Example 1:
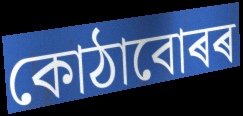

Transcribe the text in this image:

কোঠাবোৰৰ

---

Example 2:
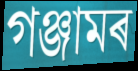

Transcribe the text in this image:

গঞ্জামৰ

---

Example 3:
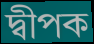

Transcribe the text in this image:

দ্বীপক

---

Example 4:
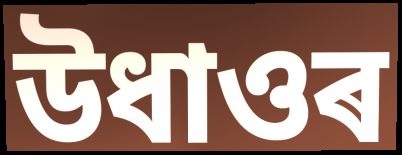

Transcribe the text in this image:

উধাওৰ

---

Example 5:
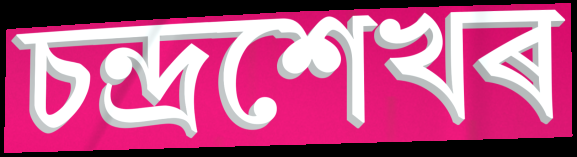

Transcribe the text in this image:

চন্দ্ৰশেখৰ